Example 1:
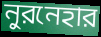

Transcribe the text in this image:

নুরনেহার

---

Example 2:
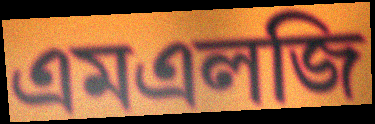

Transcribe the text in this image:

এমএলজি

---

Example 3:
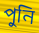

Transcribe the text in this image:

পুনি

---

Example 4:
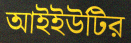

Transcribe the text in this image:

আইইউটির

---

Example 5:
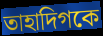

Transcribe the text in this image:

তাহাদিগকে